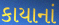
કાયાનાં